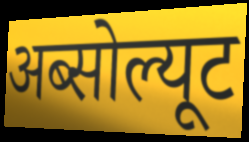
अब्सोल्यूट